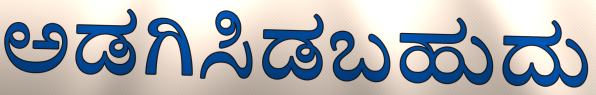
ಅಡಗಿಸಿಡಬಹುದು